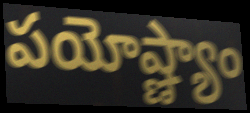
పయోష్ణ్యాం